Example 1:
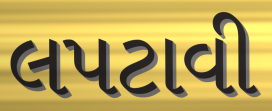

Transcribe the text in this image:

લપટાવી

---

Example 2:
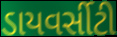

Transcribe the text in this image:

ડાયવર્સીટી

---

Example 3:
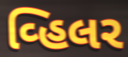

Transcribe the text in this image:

વ્હિલર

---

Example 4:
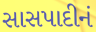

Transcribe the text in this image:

સાસપાદીનં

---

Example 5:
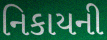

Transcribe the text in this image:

નિકાયની